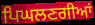
ਪਿਘਲਣਗੀਆਂ